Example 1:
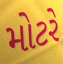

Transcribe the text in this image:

મોટરે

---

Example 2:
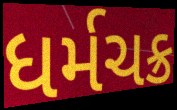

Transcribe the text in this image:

ધર્મચક્ર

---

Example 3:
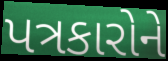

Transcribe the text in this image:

પત્રકારોને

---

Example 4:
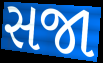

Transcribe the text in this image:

સજા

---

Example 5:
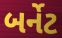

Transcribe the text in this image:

બર્નેટ